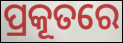
ପ୍ରକୂତରେ